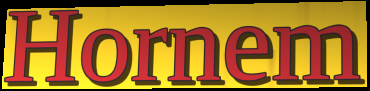
Hornem